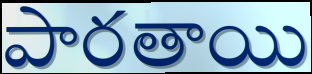
పారతాయి